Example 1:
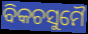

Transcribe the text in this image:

ବିକଚସୁମୈ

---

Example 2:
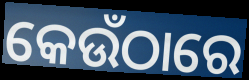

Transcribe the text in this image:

କେଉଁଠାରେ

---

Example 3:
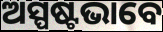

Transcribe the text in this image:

ଅସ୍ପଷ୍ଟଭାବେ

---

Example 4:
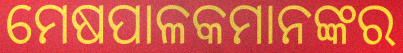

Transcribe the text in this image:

ମେଷପାଳକମାନଙ୍କର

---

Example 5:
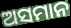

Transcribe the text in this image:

ଅସମାନ